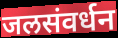
जलसंवर्धन